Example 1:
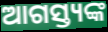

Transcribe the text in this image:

ଆଗସ୍ତ୍ୟଙ୍କ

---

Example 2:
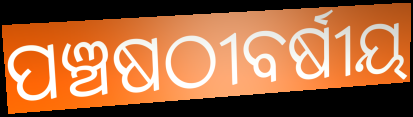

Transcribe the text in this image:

ପଞ୍ଚଷଠୀବର୍ଷୀୟ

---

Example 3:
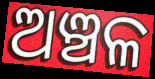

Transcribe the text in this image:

ଅଞ୍ଚଳ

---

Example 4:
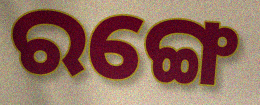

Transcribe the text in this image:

ରଙ୍ଗେ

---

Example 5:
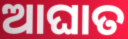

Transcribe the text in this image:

ଆଘାତ